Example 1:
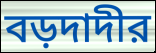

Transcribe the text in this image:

বড়দাদীর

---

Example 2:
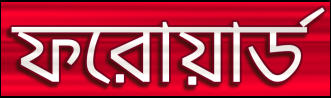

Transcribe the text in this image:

ফরোয়ার্ড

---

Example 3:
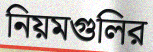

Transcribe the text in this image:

নিয়মগুলির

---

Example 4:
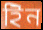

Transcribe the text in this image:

ইিন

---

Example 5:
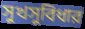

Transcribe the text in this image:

সুখসুবিধার